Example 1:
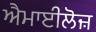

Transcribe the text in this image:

ਐਮਾਈਲੋਜ਼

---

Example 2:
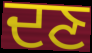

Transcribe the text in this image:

ਦਣ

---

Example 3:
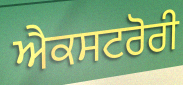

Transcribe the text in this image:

ਐਕਸਟਰੋਰੀ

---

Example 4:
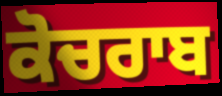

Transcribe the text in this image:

ਕੋਚਰਾਬ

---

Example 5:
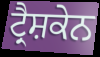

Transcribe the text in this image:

ਟ੍ਰੈਸ਼ਕੇਨ